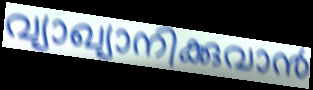
വ്യാഖ്യാനിക്കുവാൻ